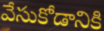
వేసుకోడానికి